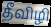
தீவிழி